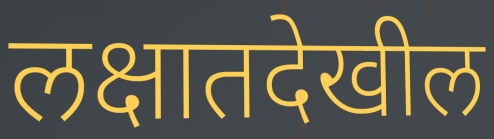
लक्षातदेखील